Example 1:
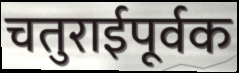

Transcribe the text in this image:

चतुराईपूर्वक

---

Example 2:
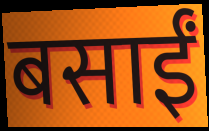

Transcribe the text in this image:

बसाईं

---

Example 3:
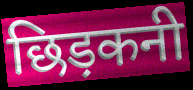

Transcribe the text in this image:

छिड़कनी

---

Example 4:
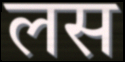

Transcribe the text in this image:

लस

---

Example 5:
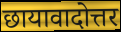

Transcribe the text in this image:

छायावादोत्तर